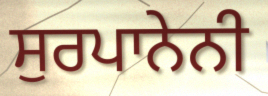
ਸੁਰਪਾਨੇਨੀ